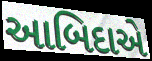
આબિદાએ